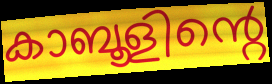
കാബൂളിന്റെ